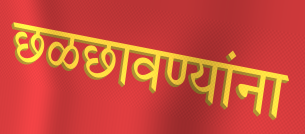
छळछावण्यांना